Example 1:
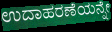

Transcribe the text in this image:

ಉದಾಹರಣೆಯನ್ನೇ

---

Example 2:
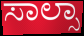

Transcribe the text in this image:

ಸಾಲ್ಸಾ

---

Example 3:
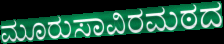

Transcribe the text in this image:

ಮೂರುಸಾವಿರಮಠದ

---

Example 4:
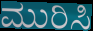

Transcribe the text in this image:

ಮುರಿಸಿ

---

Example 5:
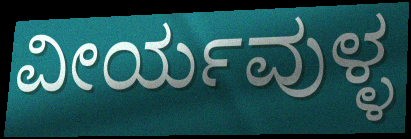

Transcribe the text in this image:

ವೀರ್ಯವುಳ್ಳ